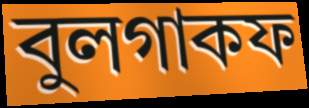
বুলগাকফ